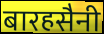
बारहसैनी